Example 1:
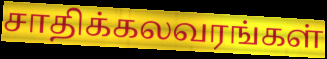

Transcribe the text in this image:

சாதிக்கலவரங்கள்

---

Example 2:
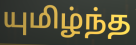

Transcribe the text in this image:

யுமிழ்ந்த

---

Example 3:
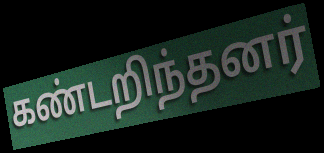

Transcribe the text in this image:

கண்டறிந்தனர்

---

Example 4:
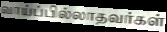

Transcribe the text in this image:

வாய்ப்பில்லாதவர்கள்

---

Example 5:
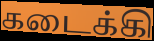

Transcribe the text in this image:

கடைக்கி